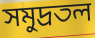
সমুদ্রতল